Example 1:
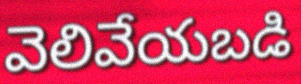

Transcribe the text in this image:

వెలివేయబడి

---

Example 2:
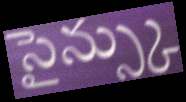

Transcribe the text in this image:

సైన్స్కు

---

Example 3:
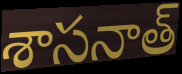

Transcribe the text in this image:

శాసనాత్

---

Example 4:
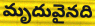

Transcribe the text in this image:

మృదువైనది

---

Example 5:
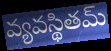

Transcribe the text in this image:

వ్యవస్థితమ్